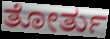
ತೋರ್ತು